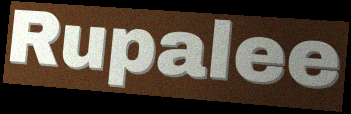
Rupalee